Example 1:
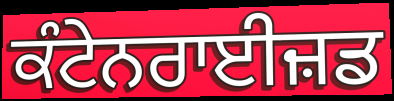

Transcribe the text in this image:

ਕੰਟੇਨਰਾਈਜ਼ਡ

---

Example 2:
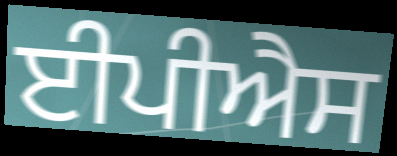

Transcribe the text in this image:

ਈਪੀਐਸ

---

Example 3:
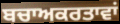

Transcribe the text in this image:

ਬਚਾਅਕਰਤਾਵਾਂ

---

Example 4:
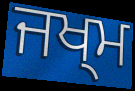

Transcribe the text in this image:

ਜਖ੍ਮ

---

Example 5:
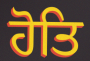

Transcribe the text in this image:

ਹੋਤਿ